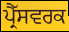
ਪ੍ਰੈੱਸਵਰਕ